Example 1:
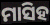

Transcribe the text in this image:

ମାସିହ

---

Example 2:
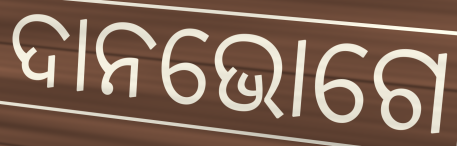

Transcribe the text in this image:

ଦାନଭୋଗେ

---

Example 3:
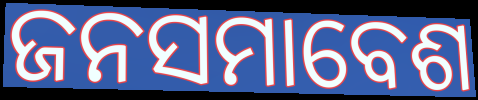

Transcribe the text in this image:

ଜନସମାବେଶ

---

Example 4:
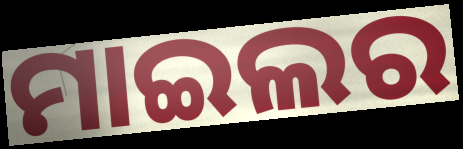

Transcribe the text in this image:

ମାଇଲର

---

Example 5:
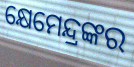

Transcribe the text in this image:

କ୍ଷେମେନ୍ଦ୍ରଙ୍କର